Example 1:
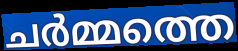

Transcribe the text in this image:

ചർമ്മത്തെ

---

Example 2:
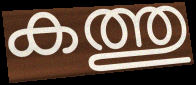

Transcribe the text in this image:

കത്തു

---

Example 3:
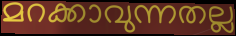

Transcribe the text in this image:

മറക്കാവുന്നതല്ല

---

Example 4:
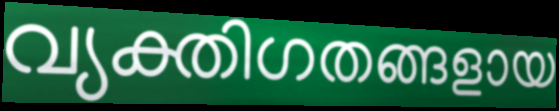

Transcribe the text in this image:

വ്യക്തിഗതങ്ങളായ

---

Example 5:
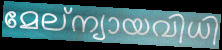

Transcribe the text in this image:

മേല്ന്യായവിധി